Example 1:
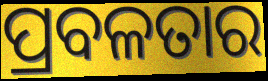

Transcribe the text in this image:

ପ୍ରବଳତାର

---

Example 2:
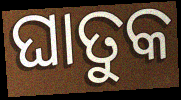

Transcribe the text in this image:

ଘାତୁକ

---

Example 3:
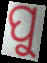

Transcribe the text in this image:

ପୁ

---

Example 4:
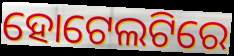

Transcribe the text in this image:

ହୋଟେଲଟିରେ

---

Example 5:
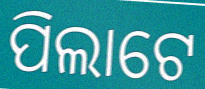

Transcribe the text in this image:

ପିଲାଟେ